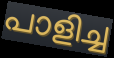
പാളിച്ച